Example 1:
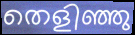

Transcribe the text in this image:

തെളിഞ്ഞു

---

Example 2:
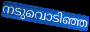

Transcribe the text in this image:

നടുവൊടിഞ്ഞ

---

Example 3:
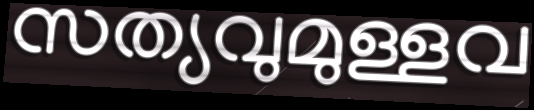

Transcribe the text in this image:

സത്യവുമുള്ളവ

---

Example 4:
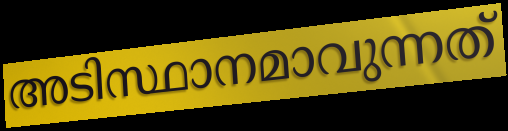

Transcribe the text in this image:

അടിസ്ഥാനമാവുന്നത്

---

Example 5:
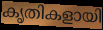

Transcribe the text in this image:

കൃതികളായി